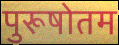
पुरूषोतम